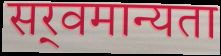
सर्वमान्यता